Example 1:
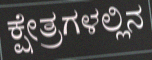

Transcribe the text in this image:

ಕ್ಷೇತ್ರಗಳಲ್ಲಿನ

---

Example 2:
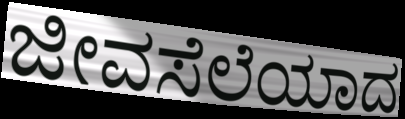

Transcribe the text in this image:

ಜೀವಸೆಲೆಯಾದ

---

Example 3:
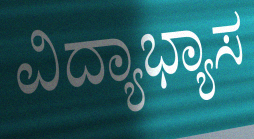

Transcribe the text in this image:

ವಿದ್ಯಾಭ್ಯಾಸ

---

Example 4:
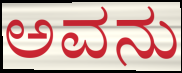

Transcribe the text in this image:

ಅವನು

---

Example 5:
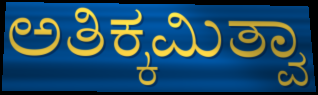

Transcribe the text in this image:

ಅತಿಕ್ಕಮಿತ್ವಾ